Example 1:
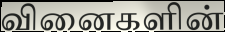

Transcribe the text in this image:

வினைகளின்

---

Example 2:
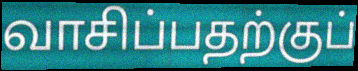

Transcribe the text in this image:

வாசிப்பதற்குப்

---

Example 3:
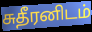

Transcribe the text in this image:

சுதீரனிடம்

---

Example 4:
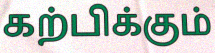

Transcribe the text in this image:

கற்பிக்கும்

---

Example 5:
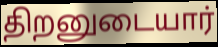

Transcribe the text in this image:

திறனுடையார்